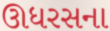
ઊધરસના